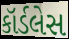
કૉર્ડલેસ